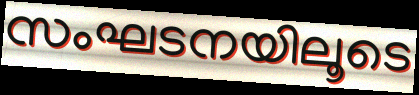
സംഘടനയിലൂടെ